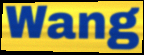
Wang